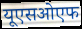
यूएसओएफ